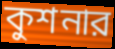
কুশনার